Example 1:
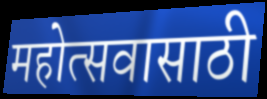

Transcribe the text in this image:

महोत्सवासाठी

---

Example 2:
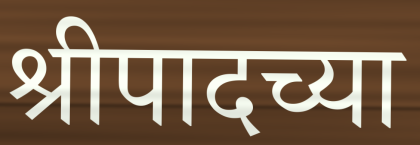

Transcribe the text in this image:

श्रीपादच्या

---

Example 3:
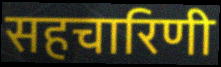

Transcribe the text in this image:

सहचारिणी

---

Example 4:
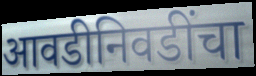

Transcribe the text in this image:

आवडीनिवडींचा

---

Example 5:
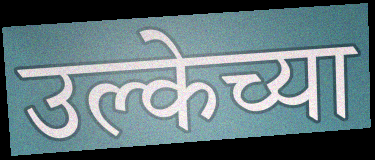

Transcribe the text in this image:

उल्केच्या